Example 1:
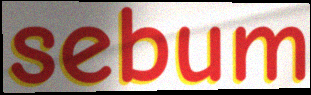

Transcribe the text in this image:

sebum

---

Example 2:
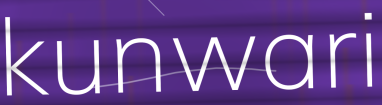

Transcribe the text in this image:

kunwari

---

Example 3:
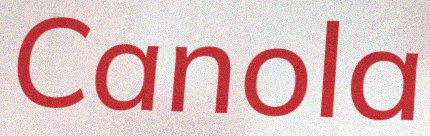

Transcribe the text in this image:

Canola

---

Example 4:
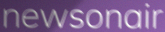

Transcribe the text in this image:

newsonair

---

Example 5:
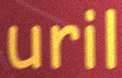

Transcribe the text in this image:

uril